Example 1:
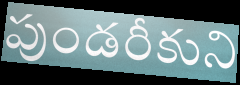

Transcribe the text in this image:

పుండరీకుని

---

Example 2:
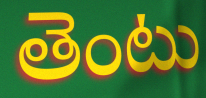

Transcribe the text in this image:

తెంటు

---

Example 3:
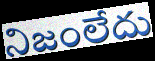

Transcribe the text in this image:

నిజంలేదు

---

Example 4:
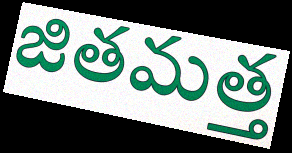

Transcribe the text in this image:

జితమత్త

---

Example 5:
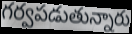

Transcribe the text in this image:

గర్వపడుతున్నారు